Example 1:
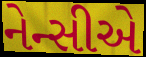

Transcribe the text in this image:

નેન્સીએ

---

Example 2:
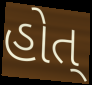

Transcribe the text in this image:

હોત્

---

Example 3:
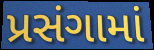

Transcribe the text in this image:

પ્રસંગામાં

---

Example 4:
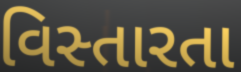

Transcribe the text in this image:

વિસ્તારતા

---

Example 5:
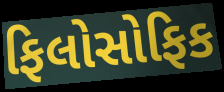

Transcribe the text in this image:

ફિલોસોફિક